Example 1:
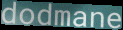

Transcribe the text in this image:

dodmane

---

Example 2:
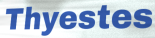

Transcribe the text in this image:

Thyestes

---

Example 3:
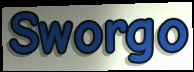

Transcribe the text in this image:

Sworgo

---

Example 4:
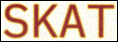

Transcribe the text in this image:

SKAT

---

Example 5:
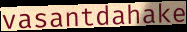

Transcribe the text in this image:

vasantdahake